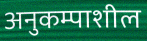
अनुकम्पाशील